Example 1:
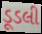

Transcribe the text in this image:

ડૂડલી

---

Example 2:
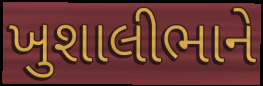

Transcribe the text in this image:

ખુશાલીભાને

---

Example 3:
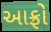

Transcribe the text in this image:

આફ્રો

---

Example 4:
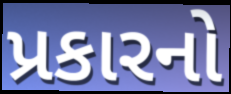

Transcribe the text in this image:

પ્રકારનો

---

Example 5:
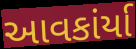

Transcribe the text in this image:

આવકાંર્યા